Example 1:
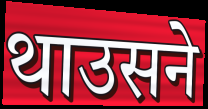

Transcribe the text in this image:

थाउसने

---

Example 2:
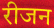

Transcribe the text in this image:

रीजन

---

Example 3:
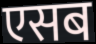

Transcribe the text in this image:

एसब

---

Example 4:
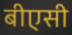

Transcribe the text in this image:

बीएसी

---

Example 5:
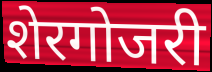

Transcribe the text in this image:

शेरगोजरी